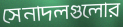
সেনাদলগুলোর